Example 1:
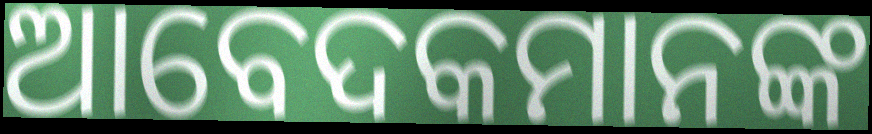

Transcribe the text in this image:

ଆବେଦକମାନଙ୍କ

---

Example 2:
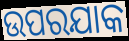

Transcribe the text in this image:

ଉପରଯାକ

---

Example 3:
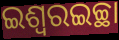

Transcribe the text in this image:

ଇଶ୍ୱରଇଚ୍ଛା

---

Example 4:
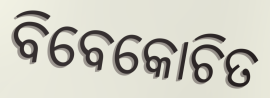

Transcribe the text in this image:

ବିବେକୋଚିତ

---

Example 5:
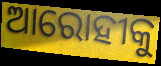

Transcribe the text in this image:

ଆରୋହୀକୁ